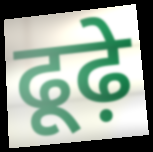
ढूढ़े